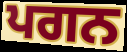
ਪਗਨ